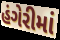
હંગેરીમાં